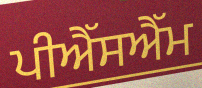
ਪੀਐੱਸਐੱਮ